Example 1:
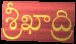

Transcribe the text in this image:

శ్రీఖాద్రి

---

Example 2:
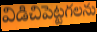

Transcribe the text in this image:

విడిచిపెట్టగలను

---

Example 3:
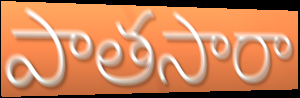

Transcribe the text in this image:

పాతసారా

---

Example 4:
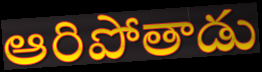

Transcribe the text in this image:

ఆరిపోతాడు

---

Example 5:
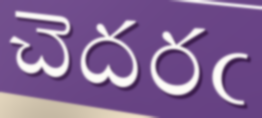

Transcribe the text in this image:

చెదరఁ